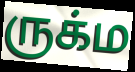
ருக்ம